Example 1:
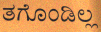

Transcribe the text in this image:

ತಗೊಂಡಿಲ್ಲ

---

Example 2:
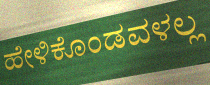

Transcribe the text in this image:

ಹೇಳಿಕೊಂಡವಳಲ್ಲ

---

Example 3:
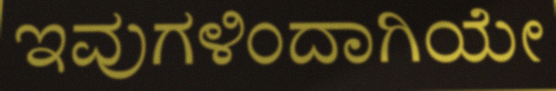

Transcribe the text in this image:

ಇವುಗಳಿಂದಾಗಿಯೇ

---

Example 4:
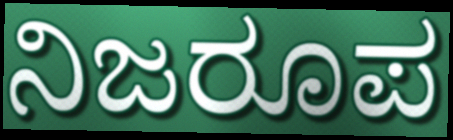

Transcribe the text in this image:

ನಿಜರೂಪ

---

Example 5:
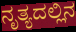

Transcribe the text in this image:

ನೃತ್ಯದಲ್ಲಿನ